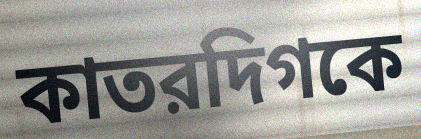
কাতরদিগকে